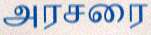
அரசரை